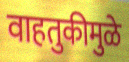
वाहतुकीमुळे